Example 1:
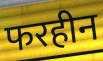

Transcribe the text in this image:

फरहीन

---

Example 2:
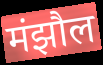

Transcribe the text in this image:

मंझौल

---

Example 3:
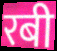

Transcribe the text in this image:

रबी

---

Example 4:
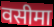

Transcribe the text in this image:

वसीमा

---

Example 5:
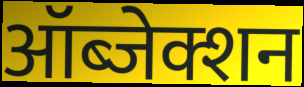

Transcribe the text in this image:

ऑब्‍जेक्‍शन